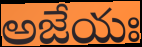
అజేయః